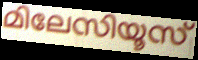
മിലേസിയൂസ്